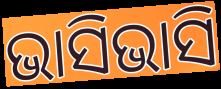
ଭାସିଭାସି